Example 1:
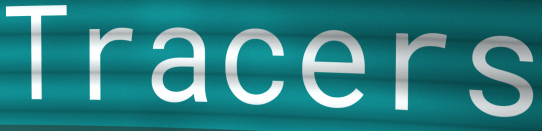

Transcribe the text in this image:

Tracers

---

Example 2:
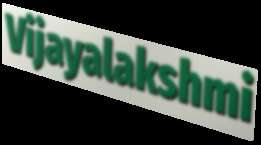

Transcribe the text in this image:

Vijayalakshmi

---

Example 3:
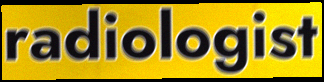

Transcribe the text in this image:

radiologist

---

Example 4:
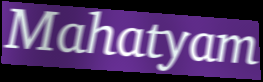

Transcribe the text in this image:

Mahatyam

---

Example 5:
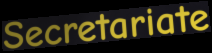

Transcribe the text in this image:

Secretariate